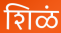
शिळं